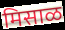
मिसाळ